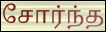
சோர்ந்த